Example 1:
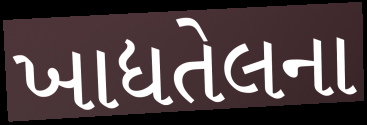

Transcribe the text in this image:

ખાદ્યતેલના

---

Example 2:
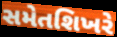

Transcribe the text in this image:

સમેતશિખરે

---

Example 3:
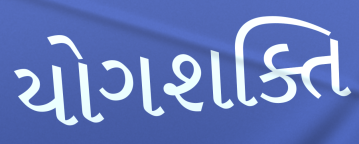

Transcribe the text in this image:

યોગશક્તિ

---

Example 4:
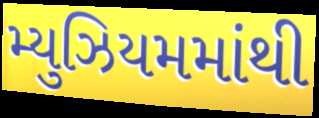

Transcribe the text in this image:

મ્યુઝિયમમાંથી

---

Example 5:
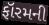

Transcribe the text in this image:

ફૉરમની